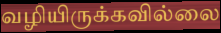
வழியிருக்கவில்லை